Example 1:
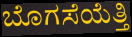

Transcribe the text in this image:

ಬೊಗಸೆಯೆತ್ತಿ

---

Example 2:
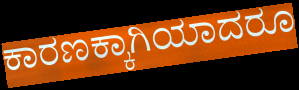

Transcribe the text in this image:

ಕಾರಣಕ್ಕಾಗಿಯಾದರೂ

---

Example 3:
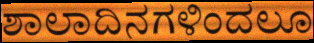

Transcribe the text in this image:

ಶಾಲಾದಿನಗಳಿಂದಲೂ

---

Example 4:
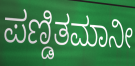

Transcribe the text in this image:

ಪಣ್ಡಿತಮಾನೀ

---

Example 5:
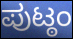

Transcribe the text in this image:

ಪುಟ್ಠಂ